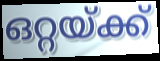
ഒറ്റയ്ക്ക്